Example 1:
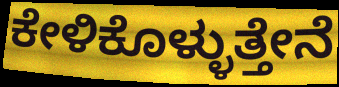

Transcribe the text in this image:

ಕೇಳಿಕೊಳ್ಳುತ್ತೇನೆ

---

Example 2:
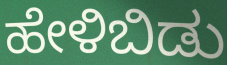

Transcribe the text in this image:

ಹೇಳಿಬಿಡು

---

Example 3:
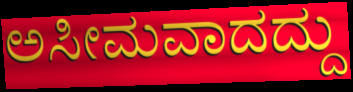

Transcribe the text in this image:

ಅಸೀಮವಾದದ್ದು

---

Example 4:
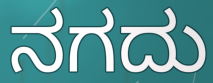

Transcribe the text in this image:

ನಗದು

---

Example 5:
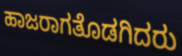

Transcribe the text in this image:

ಹಾಜರಾಗತೊಡಗಿದರು